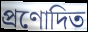
প্ৰণোদিত